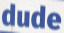
dude